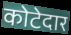
कोटेदार